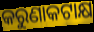
କରୁଣାକଟାକ୍ଷ